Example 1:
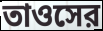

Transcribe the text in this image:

তাওসের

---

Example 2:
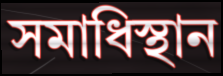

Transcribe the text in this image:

সমাধিস্থান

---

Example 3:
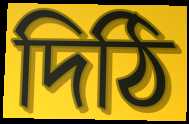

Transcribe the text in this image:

দিঠি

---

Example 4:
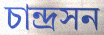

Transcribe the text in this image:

চান্দ্রসন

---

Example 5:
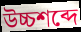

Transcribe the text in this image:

উচ্চশব্দে